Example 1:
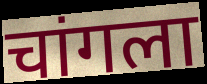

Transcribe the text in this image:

चांगला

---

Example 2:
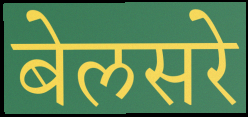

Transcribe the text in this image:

बेलसरे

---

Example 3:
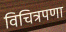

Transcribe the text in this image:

विचित्रपणा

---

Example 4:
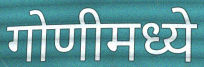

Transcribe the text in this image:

गोणीमध्ये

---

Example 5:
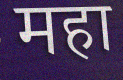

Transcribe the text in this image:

महा